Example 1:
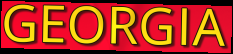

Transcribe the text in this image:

GEORGIA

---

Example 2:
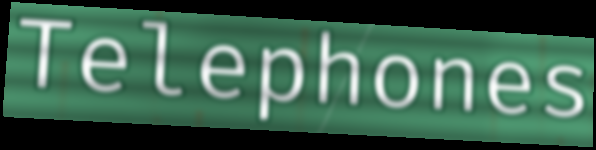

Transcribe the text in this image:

Telephones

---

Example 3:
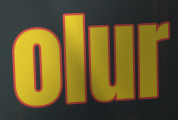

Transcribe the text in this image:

olur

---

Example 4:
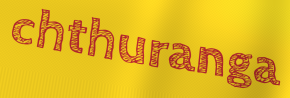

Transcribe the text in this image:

chthuranga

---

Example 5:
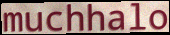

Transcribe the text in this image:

muchhalo